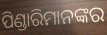
ପିଣ୍ଡାରିମାନଙ୍କର